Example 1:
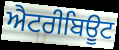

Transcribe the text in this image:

ਐਟਰੀਬਿਊਟ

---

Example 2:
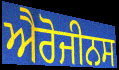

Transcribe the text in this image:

ਐਰੋਜੀਨਸ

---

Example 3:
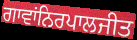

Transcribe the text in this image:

ਗਾਵਾਂਨਿਰਪਾਲਜੀਤ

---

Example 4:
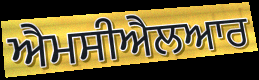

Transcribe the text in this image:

ਐਮਸੀਐਲਆਰ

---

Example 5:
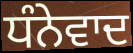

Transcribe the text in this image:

ਧੰਨੇਵਾਦ